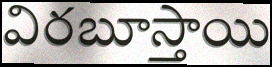
విరబూస్తాయి